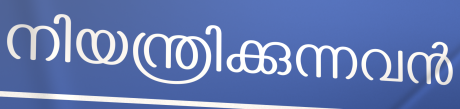
നിയന്ത്രിക്കുന്നവൻ